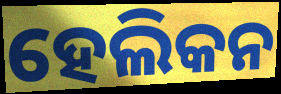
ହେଲିକନ